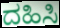
ದಹಿಸಿ